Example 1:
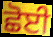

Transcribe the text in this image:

ਛੋਈ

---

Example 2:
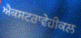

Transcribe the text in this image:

ਐਕਸਟਰਾਵੇਹੀਕਲ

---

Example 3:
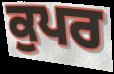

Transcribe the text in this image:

ਕੁਪਰ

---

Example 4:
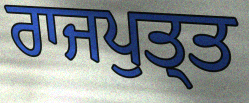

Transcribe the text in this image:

ਰਾਜਪੁਤ੍ਤ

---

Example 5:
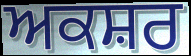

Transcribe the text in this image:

ਅਕਸ਼ਰ